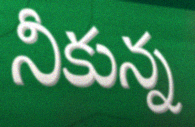
నీకున్న